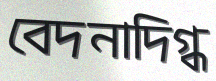
বেদনাদিগ্ধ